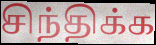
சிந்திக்க